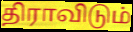
திராவிடும்